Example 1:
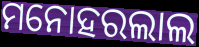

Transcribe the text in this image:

ମନୋହରଲାଲ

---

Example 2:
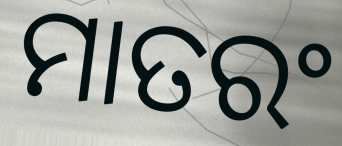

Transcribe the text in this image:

ମାତରଂ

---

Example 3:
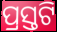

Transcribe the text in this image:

ପ୍ରସ୍ତଟି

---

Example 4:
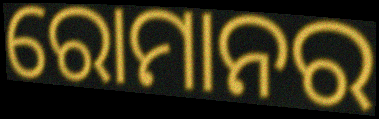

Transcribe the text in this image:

ରୋମାନର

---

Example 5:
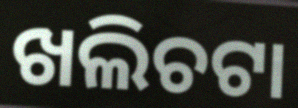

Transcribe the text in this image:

ଖଲିଚଟା